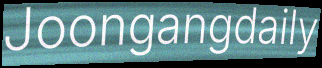
Joongangdaily